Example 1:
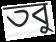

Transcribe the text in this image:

তবু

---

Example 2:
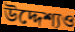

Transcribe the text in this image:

উদ্দেশ্যও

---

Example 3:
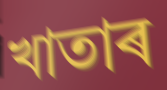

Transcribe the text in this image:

খাতাৰ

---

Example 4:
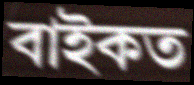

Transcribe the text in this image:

বাইকত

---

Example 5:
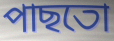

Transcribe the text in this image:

পাছতো